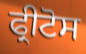
ਫ੍ਰੀਟੋਸ